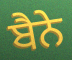
ਬੈਨੇ